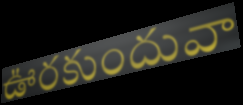
ఊరకుందువా